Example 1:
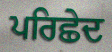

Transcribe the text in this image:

ਪਰਿਛੇਦ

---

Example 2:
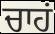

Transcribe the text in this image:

ਚਾਹਂ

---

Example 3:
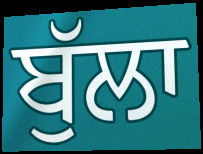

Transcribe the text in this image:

ਬੁੱਲਾ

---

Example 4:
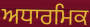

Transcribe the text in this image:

ਅਧਾਰਮਿਕ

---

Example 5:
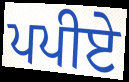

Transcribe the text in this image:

ਪਪੀਏ